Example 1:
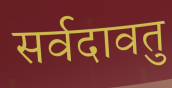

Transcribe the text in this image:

सर्वदावतु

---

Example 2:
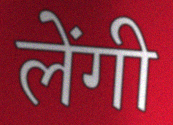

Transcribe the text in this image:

लेंगी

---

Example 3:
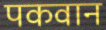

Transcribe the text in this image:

पकवान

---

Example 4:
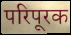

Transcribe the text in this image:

परिपूरक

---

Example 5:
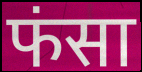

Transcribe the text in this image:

फंसा